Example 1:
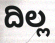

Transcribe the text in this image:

ದಿಲ್ಲ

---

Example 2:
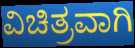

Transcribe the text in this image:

ವಿಚಿತ್ರವಾಗಿ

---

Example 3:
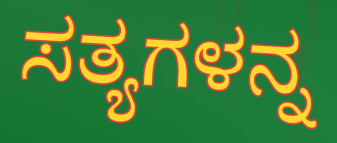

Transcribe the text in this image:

ಸತ್ಯಗಳನ್ನ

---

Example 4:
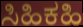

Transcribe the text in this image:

ಸಿಹಿಕಹಿ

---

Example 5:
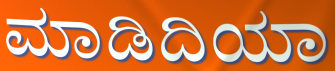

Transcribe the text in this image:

ಮಾಡಿದಿಯಾ